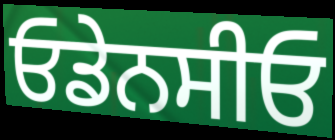
ਓਡੇਨਸੀਓ